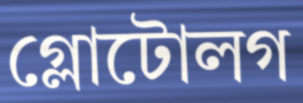
গ্লোটোলগ